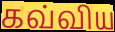
கவ்விய